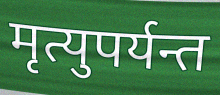
मृत्युपर्यन्त